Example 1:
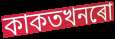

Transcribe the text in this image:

কাকতখনৰো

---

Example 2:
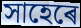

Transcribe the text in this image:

সাহেৰে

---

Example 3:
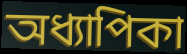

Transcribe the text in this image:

অধ্যাপিকা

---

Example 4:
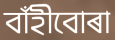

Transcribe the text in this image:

বাঁহীবোৰা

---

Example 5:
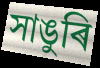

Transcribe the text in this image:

সাঙুৰি